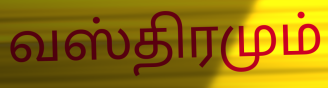
வஸ்திரமும்